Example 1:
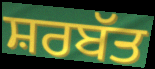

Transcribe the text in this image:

ਸ਼ਰਬੱਤ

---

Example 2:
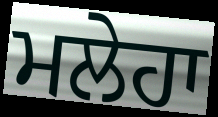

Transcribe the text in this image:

ਮਲੇਹਾ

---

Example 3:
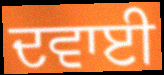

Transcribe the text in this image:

ਦਵਾਈ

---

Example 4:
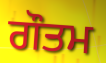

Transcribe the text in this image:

ਗੌਤਮ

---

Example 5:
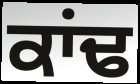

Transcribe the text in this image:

ਕਾਂਢ